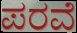
ಪರವೆ